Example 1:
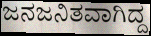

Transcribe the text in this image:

ಜನಜನಿತವಾಗಿದ್ದ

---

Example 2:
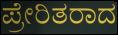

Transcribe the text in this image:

ಪ್ರೇರಿತರಾದ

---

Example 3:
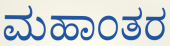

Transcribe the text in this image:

ಮಹಾಂತರ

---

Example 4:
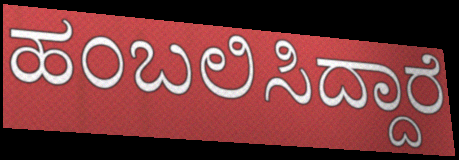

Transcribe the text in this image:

ಹಂಬಲಿಸಿದ್ದಾರೆ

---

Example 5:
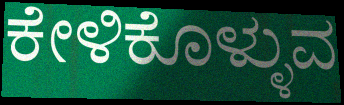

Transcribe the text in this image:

ಕೇಳಿಕೊಳ್ಳುವ